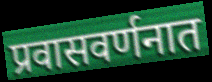
प्रवासवर्णनात